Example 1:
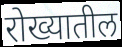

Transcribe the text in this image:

रोख्यातील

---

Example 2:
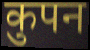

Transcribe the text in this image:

कुपन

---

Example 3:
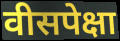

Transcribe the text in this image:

वीसपेक्षा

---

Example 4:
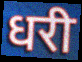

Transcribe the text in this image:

धरी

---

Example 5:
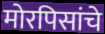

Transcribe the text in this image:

मोरपिसांचे